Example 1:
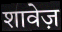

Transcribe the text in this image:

शावेज़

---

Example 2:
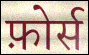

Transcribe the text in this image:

फ़ोर्स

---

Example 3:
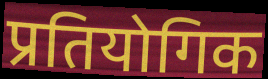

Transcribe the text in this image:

प्रतियोगिक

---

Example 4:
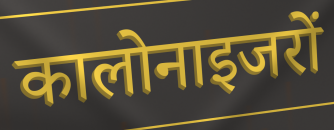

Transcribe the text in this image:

कालोनाइजरों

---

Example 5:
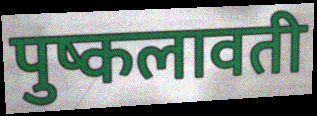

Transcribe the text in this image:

पुष्कलावती